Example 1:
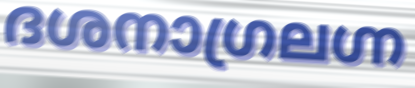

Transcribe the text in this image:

ദശനാഗ്രലഗ്ന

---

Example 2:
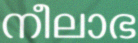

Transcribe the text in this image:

നീലാഭ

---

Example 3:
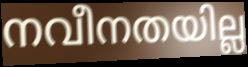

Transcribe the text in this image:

നവീനതയില്ല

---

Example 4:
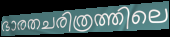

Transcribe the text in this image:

ഭാരതചരിത്രത്തിലെ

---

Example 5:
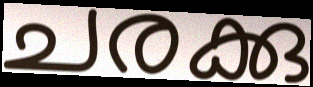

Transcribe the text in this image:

ചരക്കു